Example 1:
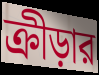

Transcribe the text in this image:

ক্রীড়ার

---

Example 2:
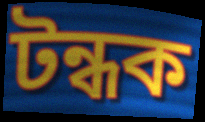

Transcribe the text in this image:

টন্ধক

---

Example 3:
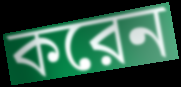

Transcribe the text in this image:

করেন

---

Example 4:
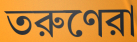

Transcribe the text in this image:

তরুণেরা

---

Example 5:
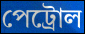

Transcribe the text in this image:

পেট্রোল